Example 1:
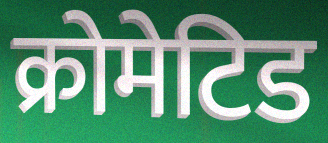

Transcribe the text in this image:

क्रोमेटिड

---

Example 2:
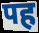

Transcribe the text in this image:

पह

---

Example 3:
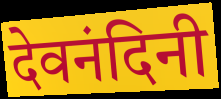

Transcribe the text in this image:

देवनंदिनी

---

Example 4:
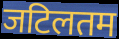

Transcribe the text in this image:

जटिलतम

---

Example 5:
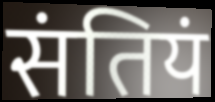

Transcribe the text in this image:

संतियं